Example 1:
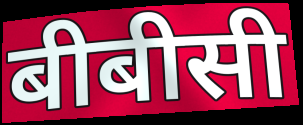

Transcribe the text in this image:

बीबीसी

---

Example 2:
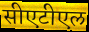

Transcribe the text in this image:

सीएटीएल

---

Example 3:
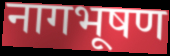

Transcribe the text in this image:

नागभूषण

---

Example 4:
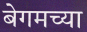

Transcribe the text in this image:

बेगमच्या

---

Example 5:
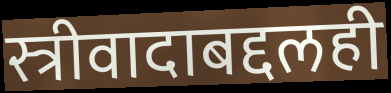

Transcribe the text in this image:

स्त्रीवादाबद्दलही